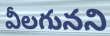
వీలగునని